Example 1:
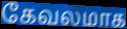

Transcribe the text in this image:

கேவலமாக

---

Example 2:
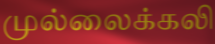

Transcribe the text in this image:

முல்லைக்கலி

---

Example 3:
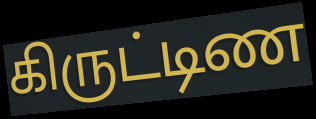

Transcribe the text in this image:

கிருட்டிண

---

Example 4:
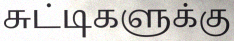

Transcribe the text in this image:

சுட்டிகளுக்கு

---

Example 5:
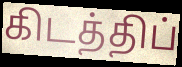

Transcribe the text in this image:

கிடத்திப்